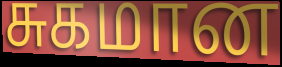
சுகமான